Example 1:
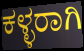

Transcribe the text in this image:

ಕಳ್ಳರಾಗಿ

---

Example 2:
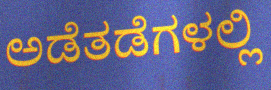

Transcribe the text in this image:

ಅಡೆತಡೆಗಳಲ್ಲಿ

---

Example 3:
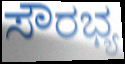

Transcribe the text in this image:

ಸೌರಭ್ಯ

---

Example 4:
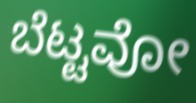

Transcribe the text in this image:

ಬೆಟ್ಟವೋ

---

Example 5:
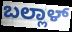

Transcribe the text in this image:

ಬಲ್ಲಾಳ್